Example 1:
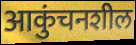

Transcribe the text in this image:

आकुंचनशील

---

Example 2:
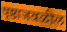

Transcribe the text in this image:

पृष्ठाजवळील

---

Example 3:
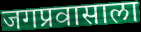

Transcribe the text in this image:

जगप्रवासाला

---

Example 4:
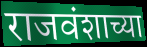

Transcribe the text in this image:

राजवंशाच्या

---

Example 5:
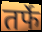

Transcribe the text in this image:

तर्फे